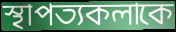
স্থাপত্যকলাকে